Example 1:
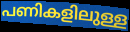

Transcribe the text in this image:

പണികളിലുള്ള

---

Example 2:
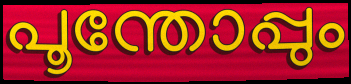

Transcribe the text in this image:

പൂന്തോപ്പും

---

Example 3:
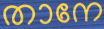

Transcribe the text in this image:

താനേ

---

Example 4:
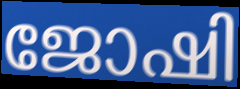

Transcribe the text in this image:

ജോഷി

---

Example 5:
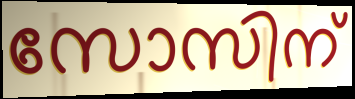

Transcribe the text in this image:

സോസിന്